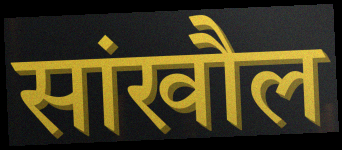
सांखौल